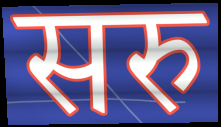
सरु